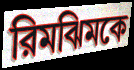
রিমঝিমকে